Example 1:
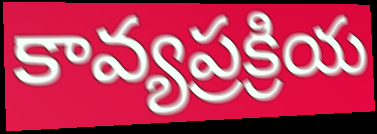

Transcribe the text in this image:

కావ్యప్రక్రియ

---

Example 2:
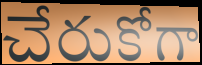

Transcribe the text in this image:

చేరుకోగా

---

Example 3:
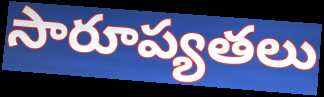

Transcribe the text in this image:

సారూప్యతలు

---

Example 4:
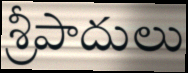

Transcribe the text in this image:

శ్రీపాదులు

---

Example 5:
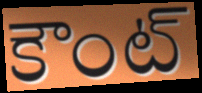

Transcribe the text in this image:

కౌంట్